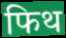
फिथ